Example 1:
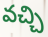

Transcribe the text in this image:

వచ్చి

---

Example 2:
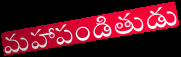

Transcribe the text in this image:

మహాపండితుడు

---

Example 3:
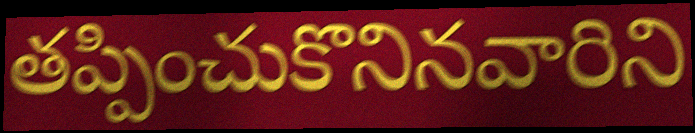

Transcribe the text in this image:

తప్పించుకొనినవారిని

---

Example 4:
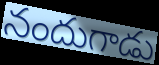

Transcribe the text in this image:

నందుగాడు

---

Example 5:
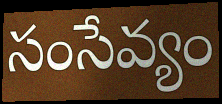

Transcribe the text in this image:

సంసేవ్యం